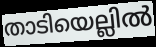
താടിയെല്ലിൽ